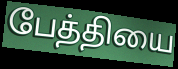
பேத்தியை